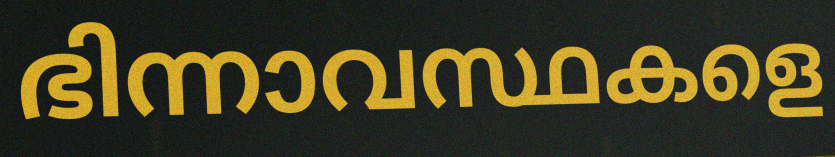
ഭിന്നാവസ്ഥകളെ